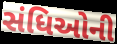
સંધિઓની